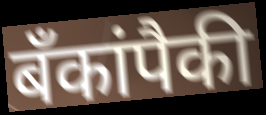
बँकांपैकी